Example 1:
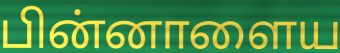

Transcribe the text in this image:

பின்னாளைய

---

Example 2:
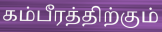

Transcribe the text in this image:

கம்பீரத்திற்கும்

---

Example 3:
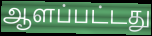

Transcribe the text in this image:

ஆளப்பட்டது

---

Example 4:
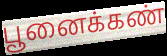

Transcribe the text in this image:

பூனைக்கண்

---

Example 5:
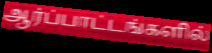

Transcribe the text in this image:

ஆர்ப்பாட்டங்களில்